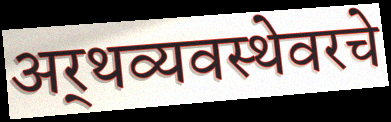
अर्थव्यवस्थेवरचे